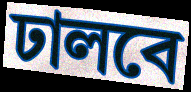
ঢালবে